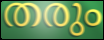
തരും